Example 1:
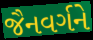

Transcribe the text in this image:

જૈનવર્ગને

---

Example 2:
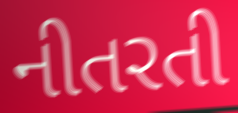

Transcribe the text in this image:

નીતરતી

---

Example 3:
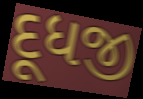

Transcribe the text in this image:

દૂધજી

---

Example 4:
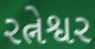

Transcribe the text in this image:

રત્નેશ્વર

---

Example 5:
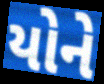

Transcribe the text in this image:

યોને